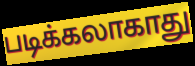
படிக்கலாகாது